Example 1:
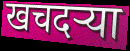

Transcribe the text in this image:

खचदऱ्या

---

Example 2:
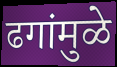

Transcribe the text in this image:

ढगांमुळे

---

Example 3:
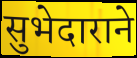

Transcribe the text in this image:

सुभेदाराने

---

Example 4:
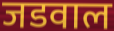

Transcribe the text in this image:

जडवाल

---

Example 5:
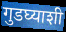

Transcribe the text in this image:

गुडघ्याशी